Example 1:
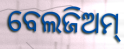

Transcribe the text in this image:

ବେଲଜିଅମ୍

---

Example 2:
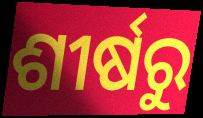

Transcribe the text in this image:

ଶୀର୍ଷରୁ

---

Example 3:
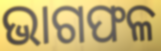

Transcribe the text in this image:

ଭାଗଫଳ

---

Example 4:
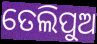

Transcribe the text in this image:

ତେଲିପୁଅ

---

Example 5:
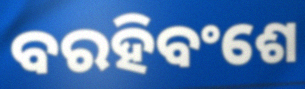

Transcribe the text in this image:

ବରହିବଂଶେ